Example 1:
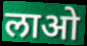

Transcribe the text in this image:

लाओ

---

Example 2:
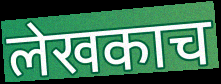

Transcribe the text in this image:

लेखकाच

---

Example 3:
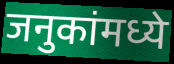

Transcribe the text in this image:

जनुकांमध्ये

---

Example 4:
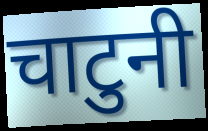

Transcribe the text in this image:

चाटुनी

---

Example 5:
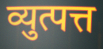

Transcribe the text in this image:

व्युत्पत्त